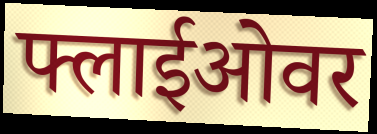
फ्लाईओवर